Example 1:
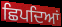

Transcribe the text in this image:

ਛਿਪਦਿਆਂ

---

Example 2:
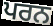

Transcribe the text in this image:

ਪਰਨ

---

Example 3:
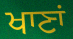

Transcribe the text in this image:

ਖਾਣਾਂ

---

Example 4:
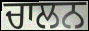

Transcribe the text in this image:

ਚਾਲਨ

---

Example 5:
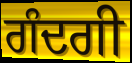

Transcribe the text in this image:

ਗੰਦਗੀ